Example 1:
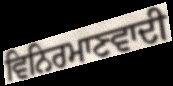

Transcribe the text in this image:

ਵਿਨਿਰਮਾਣਵਾਦੀ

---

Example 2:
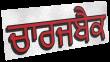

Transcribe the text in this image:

ਚਾਰਜਬੈਕ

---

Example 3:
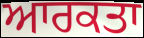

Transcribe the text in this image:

ਆਰਕਤਾ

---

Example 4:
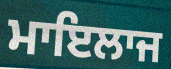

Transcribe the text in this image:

ਮਾਇਲਾਜ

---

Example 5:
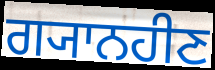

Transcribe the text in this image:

ਗ੍ਯਾਨਹੀਣ